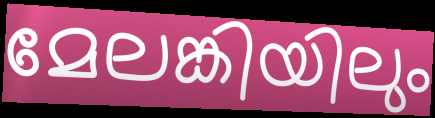
മേലങ്കിയിലും